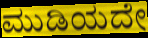
ಮುಡಿಯದೇ